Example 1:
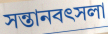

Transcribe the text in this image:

সন্তানবৎসলা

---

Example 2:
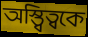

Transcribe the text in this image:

অস্ত্বিত্বকে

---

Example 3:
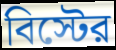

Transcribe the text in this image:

বিস্টের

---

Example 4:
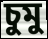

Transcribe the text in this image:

চুমু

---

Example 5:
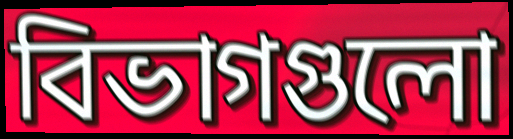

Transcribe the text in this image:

বিভাগগুলো